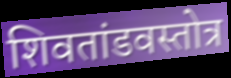
शिवतांडवस्तोत्र